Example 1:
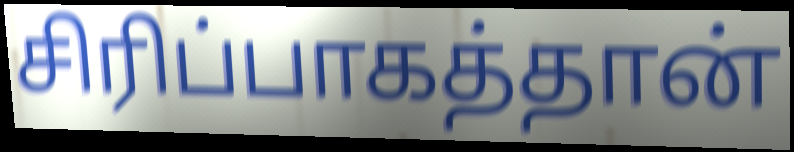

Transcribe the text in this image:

சிரிப்பாகத்தான்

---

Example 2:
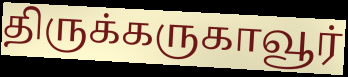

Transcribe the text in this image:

திருக்கருகாவூர்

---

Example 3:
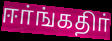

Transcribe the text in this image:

ஈர்ங்கதிர்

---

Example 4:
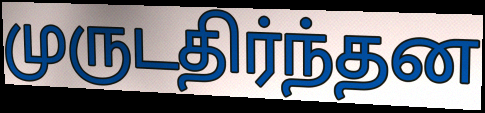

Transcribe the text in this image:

முருடதிர்ந்தன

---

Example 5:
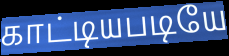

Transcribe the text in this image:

காட்டியபடியே